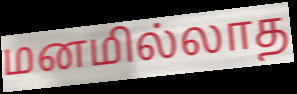
மனமில்லாத